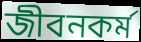
জীবনকর্ম